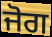
ਜੋਗ